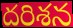
దరిశన